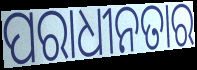
ପରାଧୀନତାର